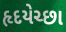
હૃદયેચ્છા